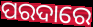
ପରଦାରେ